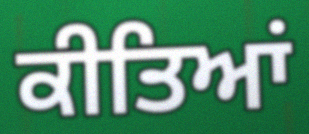
ਕੀਤਿਆਂ